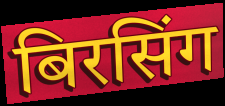
बिरसिंग